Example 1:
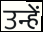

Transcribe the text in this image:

उन्हें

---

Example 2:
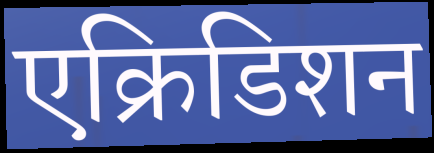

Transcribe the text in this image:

एक्रिडिशन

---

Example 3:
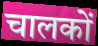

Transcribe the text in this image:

चालकों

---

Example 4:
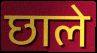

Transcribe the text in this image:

छाले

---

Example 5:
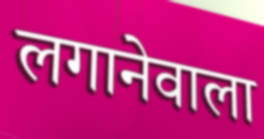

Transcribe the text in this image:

लगानेवाला